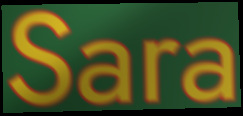
Sara